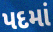
પદમાં